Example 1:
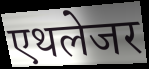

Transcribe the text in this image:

एथलेजर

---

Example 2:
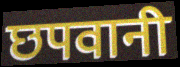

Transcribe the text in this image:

छपवानी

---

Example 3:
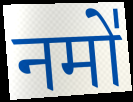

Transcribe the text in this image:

नमो॑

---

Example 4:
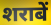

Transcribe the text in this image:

शराबें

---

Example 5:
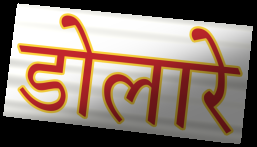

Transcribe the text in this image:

डोलारे